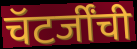
चॅटर्जींची